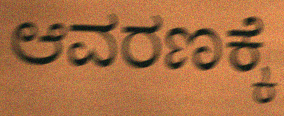
ಆವರಣಕ್ಕೆ